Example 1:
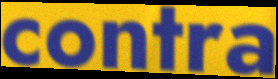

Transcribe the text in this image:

contra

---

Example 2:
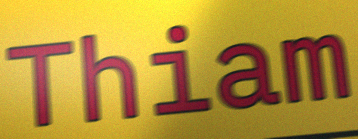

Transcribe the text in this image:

Thiam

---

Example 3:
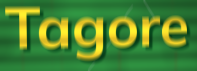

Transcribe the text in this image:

Tagore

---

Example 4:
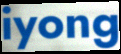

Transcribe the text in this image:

iyong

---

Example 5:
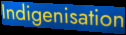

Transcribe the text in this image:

Indigenisation